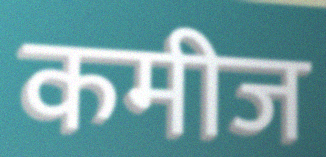
कमीज